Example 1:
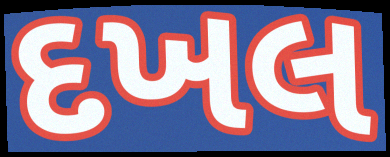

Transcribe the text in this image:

દખલ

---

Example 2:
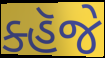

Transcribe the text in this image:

ક્હૅજે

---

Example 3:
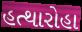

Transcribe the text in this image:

હત્થારોહા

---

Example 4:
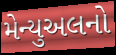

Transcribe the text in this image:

મેન્યુઅલનો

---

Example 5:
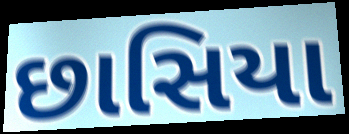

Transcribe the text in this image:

છાસિયા